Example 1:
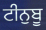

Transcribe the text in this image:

ਟੀਨੁਬੂ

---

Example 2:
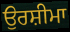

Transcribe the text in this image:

ਉਰਸ਼ੀਮਾ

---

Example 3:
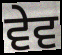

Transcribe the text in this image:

ਵੇਵ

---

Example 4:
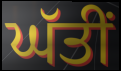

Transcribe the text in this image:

ਘੱਤੀਂ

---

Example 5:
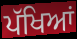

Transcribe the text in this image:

ਪੱਖਿਆਂ